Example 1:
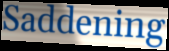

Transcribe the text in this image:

Saddening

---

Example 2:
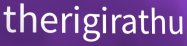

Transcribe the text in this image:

therigirathu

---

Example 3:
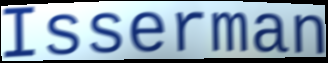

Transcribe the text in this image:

Isserman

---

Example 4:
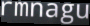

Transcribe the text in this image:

rmnagu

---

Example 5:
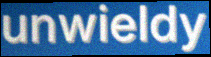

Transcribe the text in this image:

unwieldy